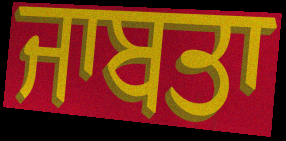
ਜਾਬਤਾ